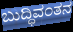
ಬುದ್ಧಿವಂತನ